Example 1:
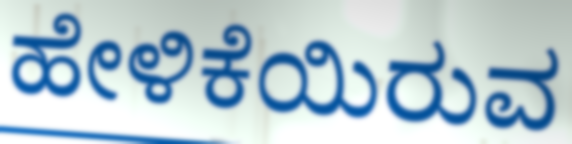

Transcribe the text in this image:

ಹೇಳಿಕೆಯಿರುವ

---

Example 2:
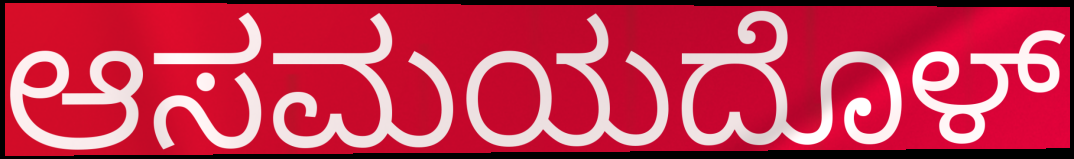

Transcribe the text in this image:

ಆಸಮಯದೊಳ್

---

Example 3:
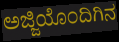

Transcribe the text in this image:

ಅಜ್ಜಿಯೊಂದಿಗಿನ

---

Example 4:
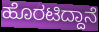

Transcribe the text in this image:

ಹೊರಟಿದ್ದಾನೆ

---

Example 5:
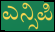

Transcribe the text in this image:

ಎನ್ಸಿಪಿ